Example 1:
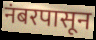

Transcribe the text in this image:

नंबरपासून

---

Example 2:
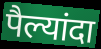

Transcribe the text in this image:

पैल्यांदा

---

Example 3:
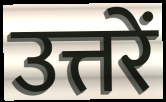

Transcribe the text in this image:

उत्तरें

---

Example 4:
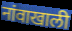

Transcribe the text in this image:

नांवाखाली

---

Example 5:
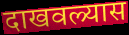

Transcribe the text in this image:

दाखवल्यास